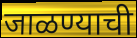
जाळण्याची